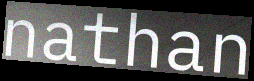
nathan